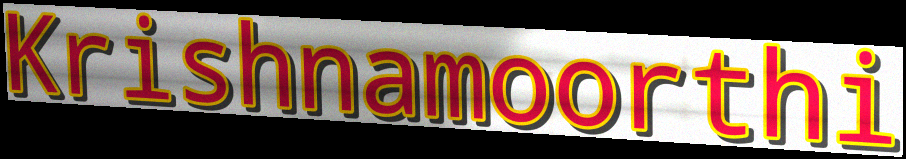
Krishnamoorthi